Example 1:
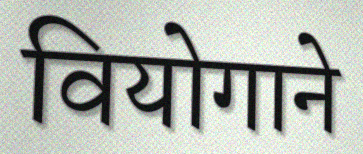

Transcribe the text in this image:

वियोगाने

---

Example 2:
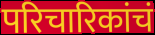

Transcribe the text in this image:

परिचारिकांचं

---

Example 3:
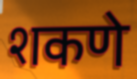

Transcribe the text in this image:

शकणे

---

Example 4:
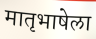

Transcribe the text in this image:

मातृभाषेला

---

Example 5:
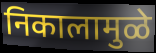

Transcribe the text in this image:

निकालामुळे